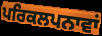
ਪਰਿਕਲਪਨਾਵਾਂ